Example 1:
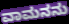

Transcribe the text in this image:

ವಾಮನನು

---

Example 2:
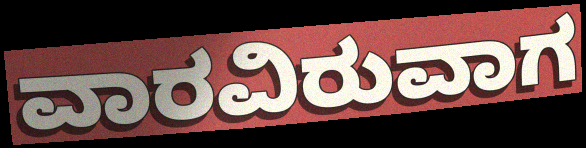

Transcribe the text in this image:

ವಾರವಿರುವಾಗ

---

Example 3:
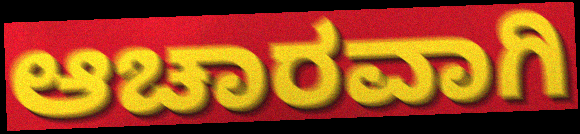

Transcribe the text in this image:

ಆಚಾರವಾಗಿ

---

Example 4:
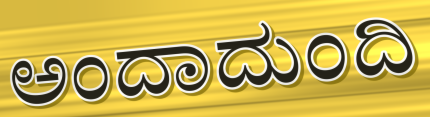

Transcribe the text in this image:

ಅಂದಾದುಂದಿ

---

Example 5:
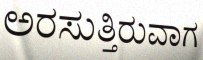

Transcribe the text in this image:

ಅರಸುತ್ತಿರುವಾಗ